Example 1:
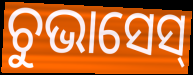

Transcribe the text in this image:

ଚୁଭାସେସ୍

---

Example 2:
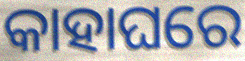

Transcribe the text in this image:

କାହାଘରେ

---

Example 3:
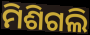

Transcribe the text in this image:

ମିଶିଗଲି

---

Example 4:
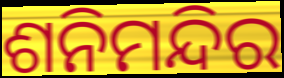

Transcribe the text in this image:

ଶନିମନ୍ଦିର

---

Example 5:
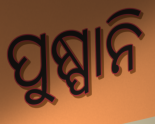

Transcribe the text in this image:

ପୁଷ୍ପାନି